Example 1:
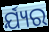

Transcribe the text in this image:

ର୍ଯ୍ୟର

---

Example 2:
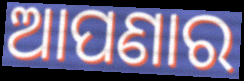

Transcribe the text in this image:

ଆପଣାର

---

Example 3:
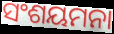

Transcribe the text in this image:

ସଂଶୟମନା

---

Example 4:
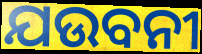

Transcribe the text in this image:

ଯଉବନୀ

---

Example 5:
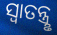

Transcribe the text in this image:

ସ୍ବାତନ୍ତ୍ରୢ